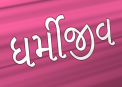
ધર્મીજીવ